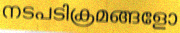
നടപടിക്രമങ്ങളോ